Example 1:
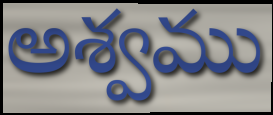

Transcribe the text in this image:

అశ్వము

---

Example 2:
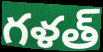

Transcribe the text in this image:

గళత్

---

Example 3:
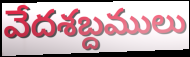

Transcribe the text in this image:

వేదశబ్దములు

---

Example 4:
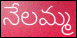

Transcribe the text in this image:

నేలమ్మ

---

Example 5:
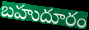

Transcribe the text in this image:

బహుదూరం